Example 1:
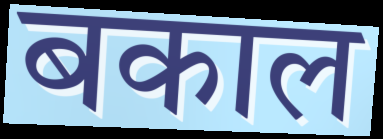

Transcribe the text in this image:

बकाल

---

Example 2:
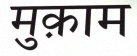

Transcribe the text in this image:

मुक़ाम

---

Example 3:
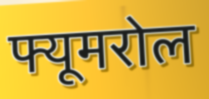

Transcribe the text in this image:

फ्यूमरोल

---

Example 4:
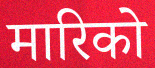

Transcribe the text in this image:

मारिको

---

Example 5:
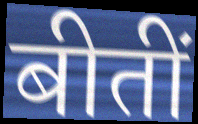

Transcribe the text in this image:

बीतीं